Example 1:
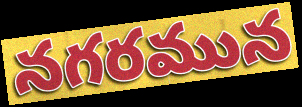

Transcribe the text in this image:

నగరమున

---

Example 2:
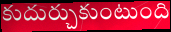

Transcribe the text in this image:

కుదుర్చుకుంటుంది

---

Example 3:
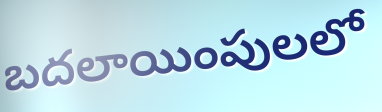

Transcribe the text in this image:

బదలాయింపులలో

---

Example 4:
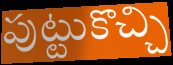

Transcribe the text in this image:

పుట్టుకొచ్చి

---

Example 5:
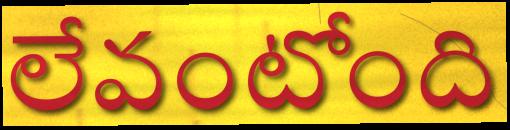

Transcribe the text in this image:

లేవంటోంది